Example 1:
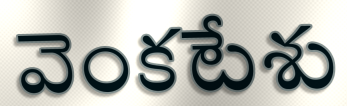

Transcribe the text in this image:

వెంకటేశు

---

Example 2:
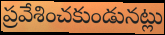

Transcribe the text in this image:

ప్రవేశించకుండునట్లు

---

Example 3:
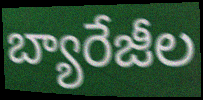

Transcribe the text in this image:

బ్యారేజీల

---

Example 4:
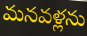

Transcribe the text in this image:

మనవళ్లను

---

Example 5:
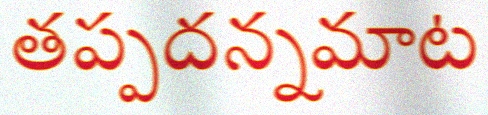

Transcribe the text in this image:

తప్పదన్నమాట